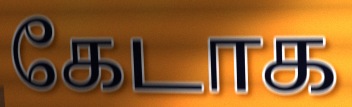
கேடாக